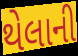
થેલાની